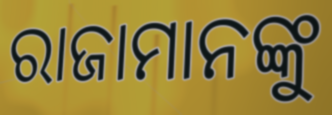
ରାଜାମାନଙ୍କୁ